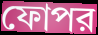
ফোপর